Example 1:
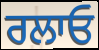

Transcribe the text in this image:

ਰਲਾਓ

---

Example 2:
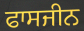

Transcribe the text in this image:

ਫਾਸਜੀਨ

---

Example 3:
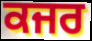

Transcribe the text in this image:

ਕਜਰ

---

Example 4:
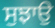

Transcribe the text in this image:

ਸੁਝਾਉ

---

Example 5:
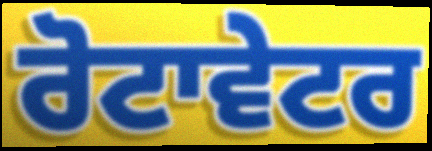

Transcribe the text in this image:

ਰੋਟਾਵੇਟਰ